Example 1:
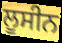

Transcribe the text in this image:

ਲੂਸੀਨ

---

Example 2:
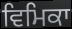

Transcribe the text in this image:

ਵਿਮਿਕਾ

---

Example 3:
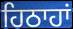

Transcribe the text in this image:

ਹਿਠਾਹਾਂ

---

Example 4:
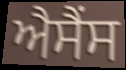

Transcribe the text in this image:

ਐਸੈਂਸ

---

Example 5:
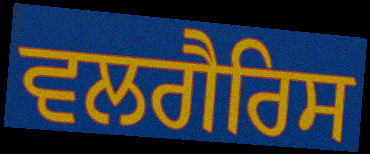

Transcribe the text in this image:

ਵਲਗੈਰਿਸ